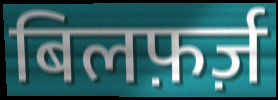
बिलफ़र्ज़